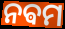
ନଵମ